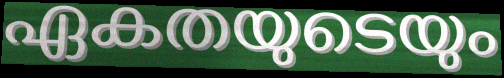
ഏകതയുടെയും